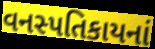
વનસ્પતિકાયનાં